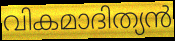
വികമാദിത്യൻ